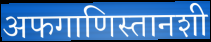
अफगाणिस्तानशी